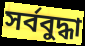
সৰ্ববুদ্ধা